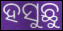
ହସୁଛୁ